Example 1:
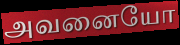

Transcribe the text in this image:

அவனையோ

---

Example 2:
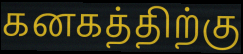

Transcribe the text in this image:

கனகத்திற்கு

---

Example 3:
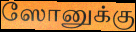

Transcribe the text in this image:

ஸோனுக்கு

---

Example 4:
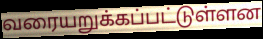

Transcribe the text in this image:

வரையறுக்கப்பட்டுள்ளன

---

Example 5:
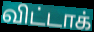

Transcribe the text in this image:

விட்டாக்